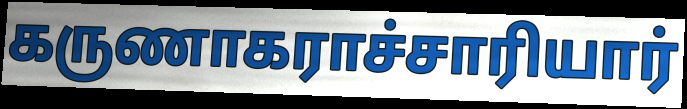
கருணாகராச்சாரியார்